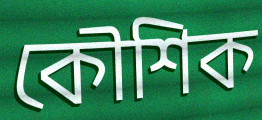
কৌশিক